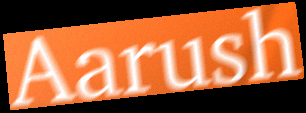
Aarush